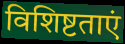
विशिष्टताएं